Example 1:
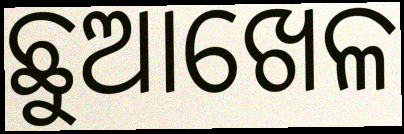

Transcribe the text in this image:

ଛୁଆଖେଳ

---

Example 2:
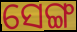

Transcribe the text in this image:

ସେଙ୍ଗ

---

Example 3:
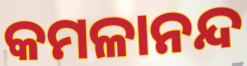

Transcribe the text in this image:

କମଳାନନ୍ଦ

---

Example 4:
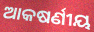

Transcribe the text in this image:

ଆକଷର୍ଣୀୟ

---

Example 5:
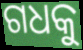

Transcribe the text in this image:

ଗଧକୁ